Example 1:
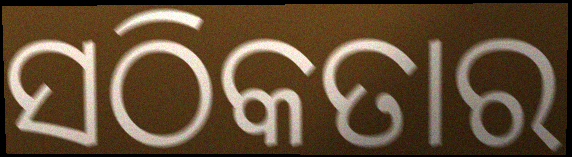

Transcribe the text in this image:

ସଠିକତାର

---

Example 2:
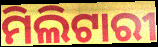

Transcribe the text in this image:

ମିଲିଟାରୀ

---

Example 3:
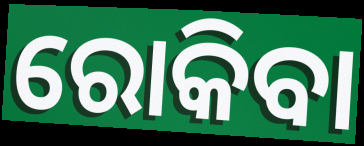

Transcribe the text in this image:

ରୋକିବା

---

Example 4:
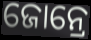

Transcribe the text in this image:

ଜୋନ୍ରେ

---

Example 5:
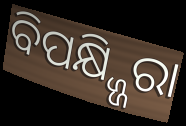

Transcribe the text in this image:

ବିପକ୍ଷ୍ଜ୍ଜିରା